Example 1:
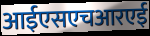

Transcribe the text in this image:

आईएसएचआरएई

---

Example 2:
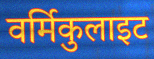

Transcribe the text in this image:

वर्मिकुलाइट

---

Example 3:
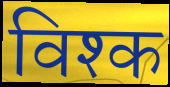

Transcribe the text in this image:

विश्क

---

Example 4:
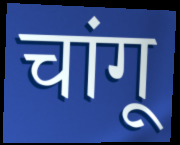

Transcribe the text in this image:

चांगू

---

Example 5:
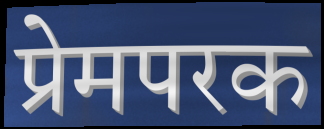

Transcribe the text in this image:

प्रेमपरक